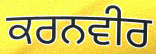
ਕਰਨਵੀਰ